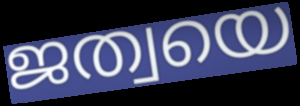
ജത്വയെ